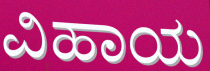
ವಿಹಾಯ